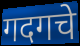
गदगचे